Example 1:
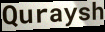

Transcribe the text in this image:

Quraysh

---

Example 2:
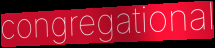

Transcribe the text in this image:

congregational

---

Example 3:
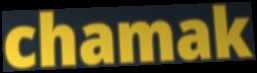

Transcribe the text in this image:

chamak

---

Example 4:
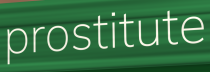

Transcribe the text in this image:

prostitute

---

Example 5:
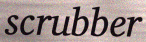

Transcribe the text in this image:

scrubber